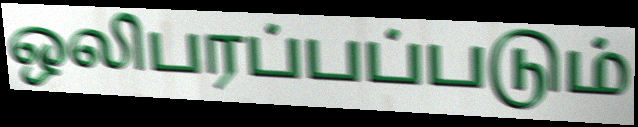
ஒலிபரப்பப்படும்